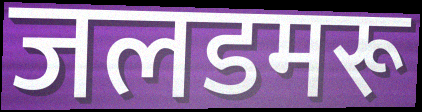
जलडमरू